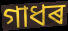
গাধৰ